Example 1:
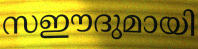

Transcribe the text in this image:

സഈദുമായി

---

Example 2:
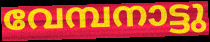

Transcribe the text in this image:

വേമ്പനാട്ടു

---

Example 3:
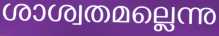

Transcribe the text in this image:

ശാശ്വതമല്ലെന്നു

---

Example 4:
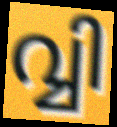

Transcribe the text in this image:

വ്വി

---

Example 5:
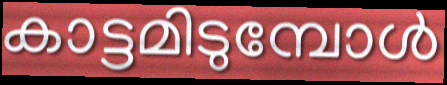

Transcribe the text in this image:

കാട്ടമിടുമ്പോൾ